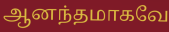
ஆனந்தமாகவே